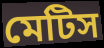
মেটিস